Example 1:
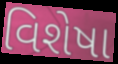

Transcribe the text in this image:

વિશેષા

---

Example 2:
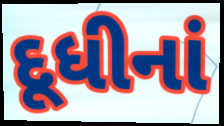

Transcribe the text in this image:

દૂધીનાં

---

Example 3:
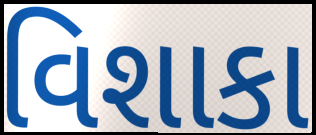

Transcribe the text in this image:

વિશાકા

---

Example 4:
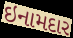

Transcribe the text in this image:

ઇનામદાર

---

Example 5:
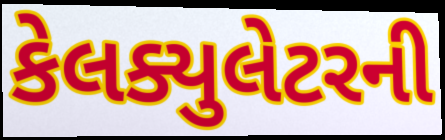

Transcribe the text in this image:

કેલક્યુલેટરની